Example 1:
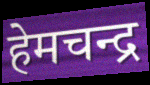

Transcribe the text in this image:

हेमचन्द्र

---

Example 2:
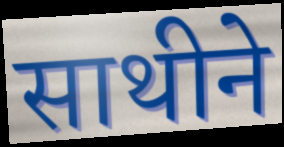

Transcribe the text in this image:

साथीने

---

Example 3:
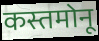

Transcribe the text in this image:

कस्तमोनू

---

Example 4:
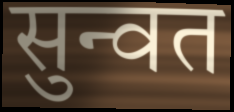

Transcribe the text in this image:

सुन्वत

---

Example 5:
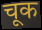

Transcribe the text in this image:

चूक